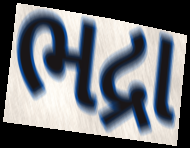
ભદ્રા